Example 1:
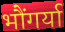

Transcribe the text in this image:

भौंगर्या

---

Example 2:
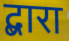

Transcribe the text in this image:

द्बारा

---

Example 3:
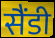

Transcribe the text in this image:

सैंडी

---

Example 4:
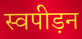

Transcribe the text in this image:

स्वपीड़न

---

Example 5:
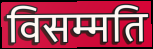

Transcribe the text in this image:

विसम्मति